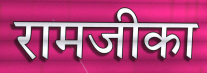
रामजीका